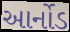
આર્નોડ